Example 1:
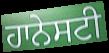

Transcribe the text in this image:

ਹਾਨੇਸਟੀ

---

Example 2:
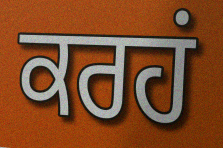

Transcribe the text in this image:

ਕਰਹਂ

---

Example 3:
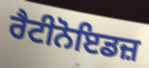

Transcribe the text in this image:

ਰੈਟੀਨੋਇਡਜ਼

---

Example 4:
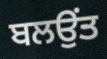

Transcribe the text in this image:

ਬਲਉਂਤ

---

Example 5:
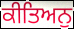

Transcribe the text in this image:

ਕੀਤਿਅਨੁ